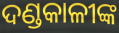
ଦଣ୍ଡକାଳୀଙ୍କ